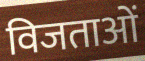
विजताओं